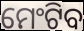
ମେଂଟିବ